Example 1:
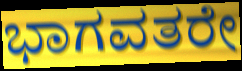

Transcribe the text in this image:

ಭಾಗವತರೇ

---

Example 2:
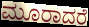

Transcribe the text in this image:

ಮೂರಾದರೆ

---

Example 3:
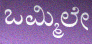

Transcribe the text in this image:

ಒಮ್ಮಿಲೇ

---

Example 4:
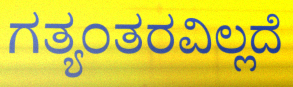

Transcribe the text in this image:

ಗತ್ಯಂತರವಿಲ್ಲದೆ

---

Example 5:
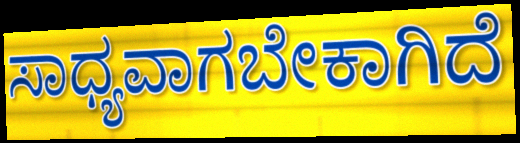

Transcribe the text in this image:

ಸಾಧ್ಯವಾಗಬೇಕಾಗಿದೆ